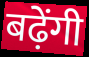
बढ़ेंगी